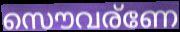
സൌവര്ണേ